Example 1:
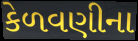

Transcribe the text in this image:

કેળવણીના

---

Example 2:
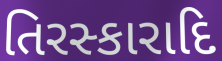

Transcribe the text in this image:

તિરસ્કારાદિ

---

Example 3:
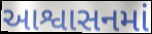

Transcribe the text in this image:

આશ્વાસનમાં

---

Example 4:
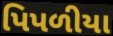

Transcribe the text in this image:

પિપળીયા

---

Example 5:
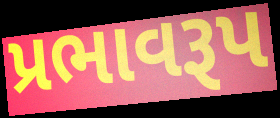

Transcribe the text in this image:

પ્રભાવરૂપ